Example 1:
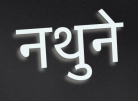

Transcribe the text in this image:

नथुने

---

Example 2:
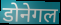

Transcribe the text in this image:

डोनेगल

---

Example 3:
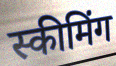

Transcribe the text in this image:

स्कीमिंग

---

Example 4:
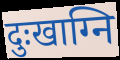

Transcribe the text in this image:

दुःखाग्नि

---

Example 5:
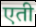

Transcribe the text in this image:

एती